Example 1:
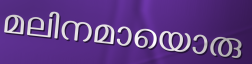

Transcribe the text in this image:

മലിനമായൊരു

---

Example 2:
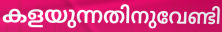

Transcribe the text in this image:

കളയുന്നതിനുവേണ്ടി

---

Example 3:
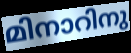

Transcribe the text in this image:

മിനാറിനു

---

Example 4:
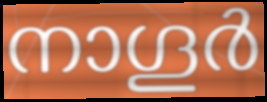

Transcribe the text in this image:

നാഗൂർ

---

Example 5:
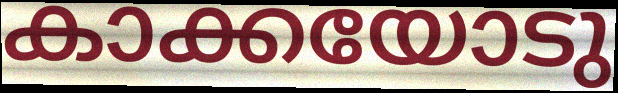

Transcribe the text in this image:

കാക്കയോടു